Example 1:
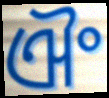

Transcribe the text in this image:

ଐଂ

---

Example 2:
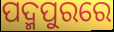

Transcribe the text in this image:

ପଦ୍ମପୁରରେ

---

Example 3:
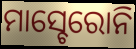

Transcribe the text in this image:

ମାସ୍ଚେରୋନି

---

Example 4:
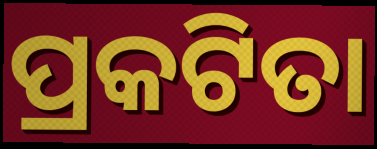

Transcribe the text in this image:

ପ୍ରକଟିତା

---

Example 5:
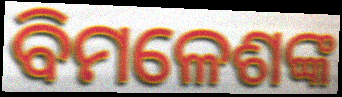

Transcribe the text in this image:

ବିମଳେଶଙ୍କ